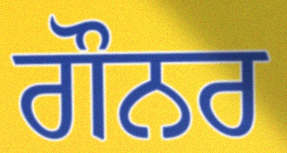
ਗੌਨਰ